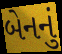
બેનનું